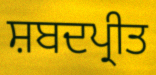
ਸ਼ਬਦਪ੍ਰੀਤ